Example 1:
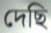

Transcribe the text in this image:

দেছি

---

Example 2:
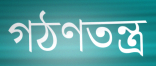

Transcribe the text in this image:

গঠণতন্ত্র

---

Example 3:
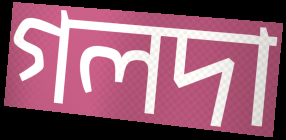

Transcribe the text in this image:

গলদা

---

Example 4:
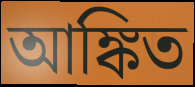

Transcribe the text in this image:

আঙ্কিত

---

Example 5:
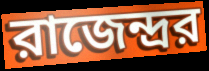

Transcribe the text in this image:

রাজেন্দ্রর